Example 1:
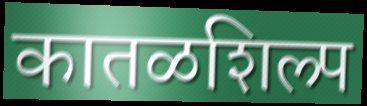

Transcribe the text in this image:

कातळशिल्प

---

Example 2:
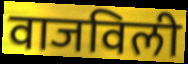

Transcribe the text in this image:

वाजविली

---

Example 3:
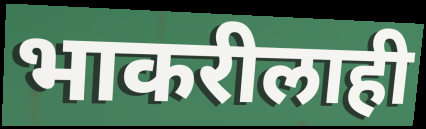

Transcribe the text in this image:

भाकरीलाही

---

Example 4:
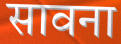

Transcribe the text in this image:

सावना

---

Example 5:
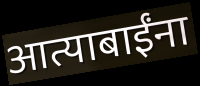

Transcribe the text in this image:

आत्याबाईंना